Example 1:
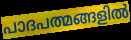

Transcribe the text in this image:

പാദപത്മങ്ങളിൽ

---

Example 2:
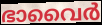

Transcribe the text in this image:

ഭാവൈർ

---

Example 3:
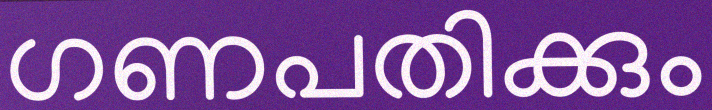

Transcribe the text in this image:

ഗണപതിക്കും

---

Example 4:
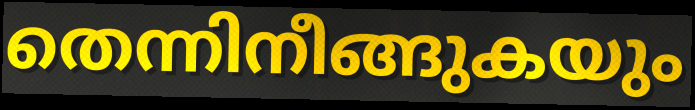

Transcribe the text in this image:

തെന്നിനീങ്ങുകയും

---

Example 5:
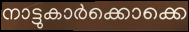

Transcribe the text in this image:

നാട്ടുകാർക്കൊക്കെ